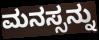
ಮನಸ್ಸನ್ನು